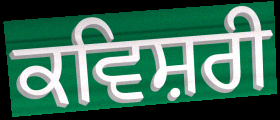
ਕਵਿਸ਼ਰੀ